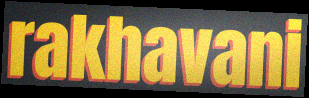
rakhavani